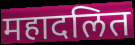
महादलित